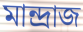
মান্দ্রাজ